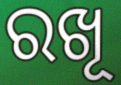
ରଖୂ